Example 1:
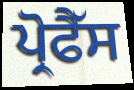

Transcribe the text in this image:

ਪ੍ਰੋਫੈੱਸ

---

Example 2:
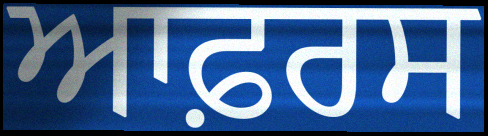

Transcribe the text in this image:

ਆਫ਼ਰਸ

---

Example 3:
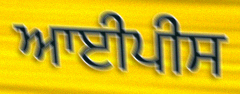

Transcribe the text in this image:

ਆਈਪੀਸ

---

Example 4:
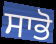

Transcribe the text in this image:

ਸਾਭੋ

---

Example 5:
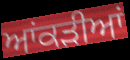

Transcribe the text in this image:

ਆਂਕੜੀਆਂ